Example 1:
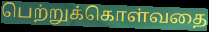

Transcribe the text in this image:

பெற்றுக்கொள்வதை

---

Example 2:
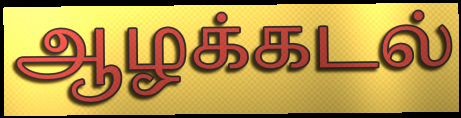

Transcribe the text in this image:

ஆழக்கடல்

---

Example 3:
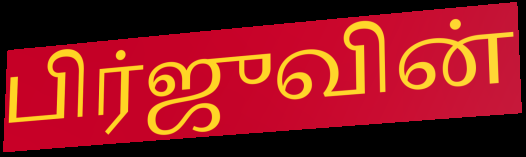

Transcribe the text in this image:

பிர்ஜுவின்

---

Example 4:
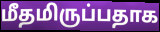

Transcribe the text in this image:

மீதமிருப்பதாக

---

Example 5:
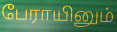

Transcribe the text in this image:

பேராயினும்